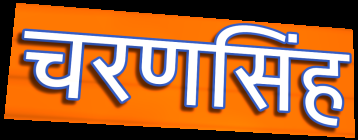
चरणसिंह